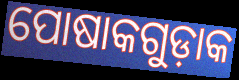
ପୋଷାକଗୁଡ଼ାକ